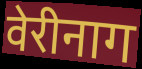
वेरीनाग